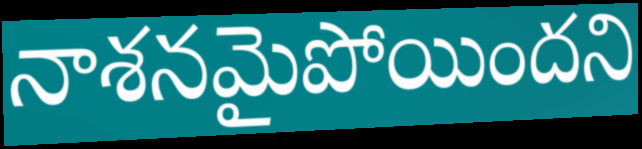
నాశనమైపోయిందని